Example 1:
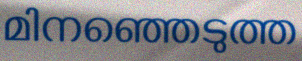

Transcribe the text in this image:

മിനഞ്ഞെടുത്ത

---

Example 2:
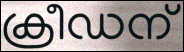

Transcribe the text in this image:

ക്രീഡന്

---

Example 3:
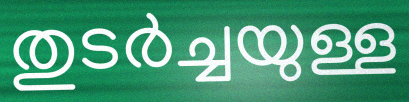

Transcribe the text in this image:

തുടർച്ചയുള്ള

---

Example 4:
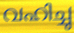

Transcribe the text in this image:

വഹിച്ചു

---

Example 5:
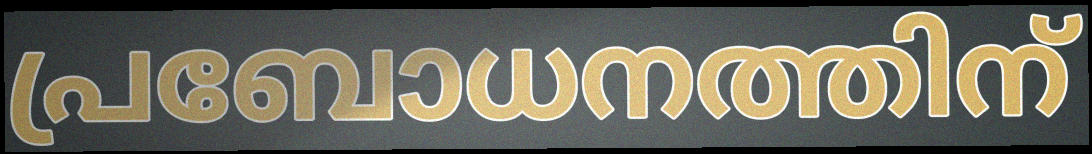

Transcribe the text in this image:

പ്രബോധനത്തിന്